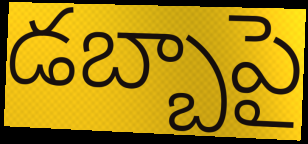
డబ్బాపై